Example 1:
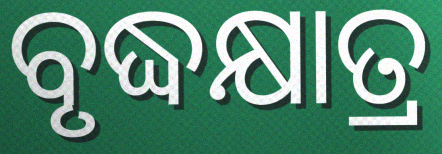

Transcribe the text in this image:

ବୃଦ୍ଧକ୍ଷାତ୍ର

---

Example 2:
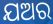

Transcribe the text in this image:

ଯଅର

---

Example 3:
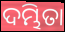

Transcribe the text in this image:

ଦମ୍ଭିତା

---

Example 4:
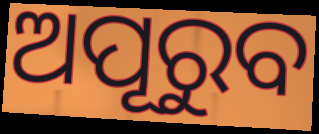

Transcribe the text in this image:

ଅପୂରୁବ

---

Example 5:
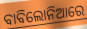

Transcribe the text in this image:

ବାବିଲୋନିଆରେ